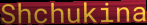
Shchukina